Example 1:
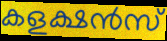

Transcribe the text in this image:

കളക്ഷൻസ്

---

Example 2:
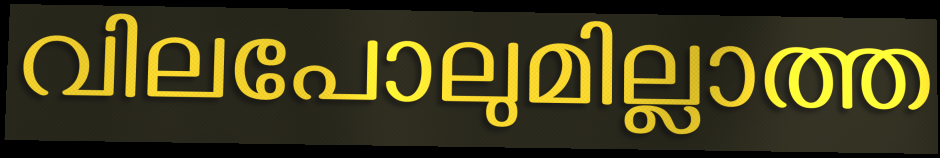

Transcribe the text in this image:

വിലപോലുമില്ലാത്ത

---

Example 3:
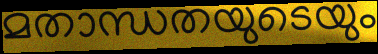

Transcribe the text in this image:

മതാന്ധതയുടെയും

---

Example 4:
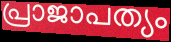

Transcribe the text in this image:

പ്രാജാപത്യം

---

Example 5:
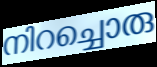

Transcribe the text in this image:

നിറച്ചൊരു